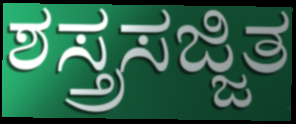
ಶಸ್ತ್ರಸಜ್ಜಿತ